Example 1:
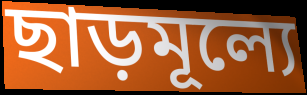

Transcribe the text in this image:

ছাড়মূল্যে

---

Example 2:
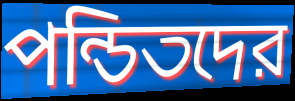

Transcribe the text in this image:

পন্ডিতদের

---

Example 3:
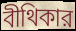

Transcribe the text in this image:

বীথিকার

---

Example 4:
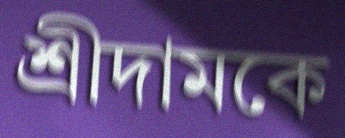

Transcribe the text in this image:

শ্রীদামকে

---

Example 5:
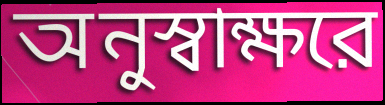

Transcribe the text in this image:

অনুস্বাক্ষরে